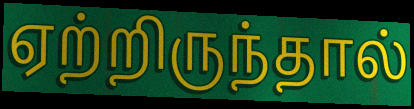
ஏற்றிருந்தால்